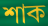
শাক